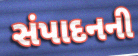
સંપાદનની